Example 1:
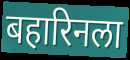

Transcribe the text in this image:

बहारिनला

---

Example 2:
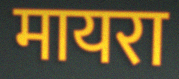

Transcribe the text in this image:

मायरा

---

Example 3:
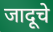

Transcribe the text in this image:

जादूचे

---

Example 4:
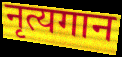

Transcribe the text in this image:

नृत्यगान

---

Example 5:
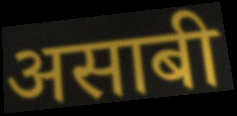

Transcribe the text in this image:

असाबी